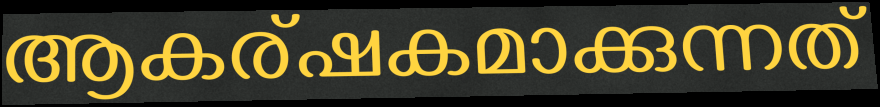
ആകര്ഷകമാക്കുന്നത്